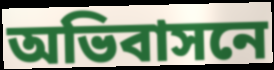
অভিবাসনে